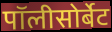
पॉलीसोर्बेट